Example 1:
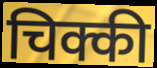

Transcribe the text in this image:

चिक्की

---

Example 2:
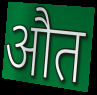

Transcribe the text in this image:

औत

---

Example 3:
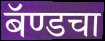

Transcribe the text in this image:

बॅण्डचा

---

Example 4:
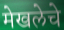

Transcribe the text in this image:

मेखलेचे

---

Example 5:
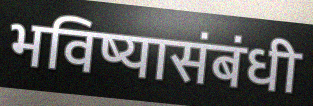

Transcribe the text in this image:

भविष्यासंबंधी